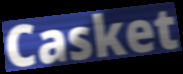
Casket